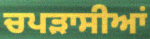
ਚਪੜਾਸੀਆਂ